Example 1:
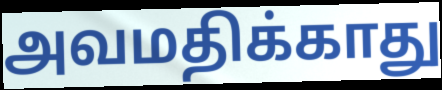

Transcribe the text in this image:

அவமதிக்காது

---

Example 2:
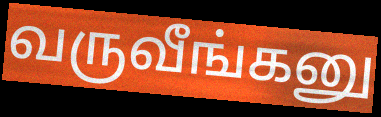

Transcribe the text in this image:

வருவீங்கனு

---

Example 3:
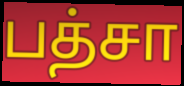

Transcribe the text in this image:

பத்சா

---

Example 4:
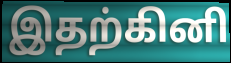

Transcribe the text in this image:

இதற்கினி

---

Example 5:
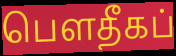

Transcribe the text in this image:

பௌதீகப்